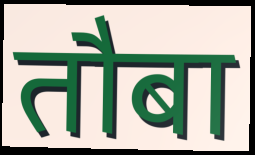
तौबा